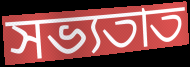
সভ্যতাত